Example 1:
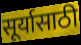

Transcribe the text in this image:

सूर्यासाठी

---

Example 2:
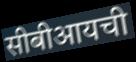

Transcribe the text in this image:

सीबीआयची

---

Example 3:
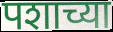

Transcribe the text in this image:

पशाच्या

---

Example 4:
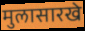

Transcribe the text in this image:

मुलासारखे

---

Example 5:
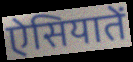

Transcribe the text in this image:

ऐसियातें